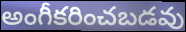
అంగీకరించబడవు